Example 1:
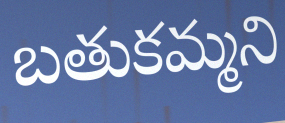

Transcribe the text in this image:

బతుకమ్మని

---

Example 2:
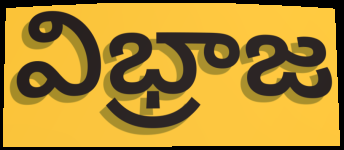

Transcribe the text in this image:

విభ్రాజ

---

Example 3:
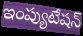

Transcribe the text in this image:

ఇంప్యుటేషన్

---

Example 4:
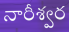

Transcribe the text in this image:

నారీశ్వర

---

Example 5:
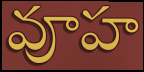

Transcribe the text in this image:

వూహ